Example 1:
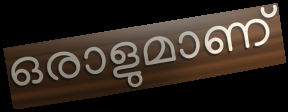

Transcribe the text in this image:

ഒരാളുമാണ്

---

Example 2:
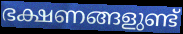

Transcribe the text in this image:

ഭക്ഷണങ്ങളുണ്ട്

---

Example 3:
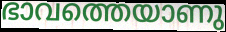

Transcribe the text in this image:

ഭാവത്തെയാണു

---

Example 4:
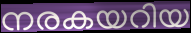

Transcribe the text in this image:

നരകയറിയ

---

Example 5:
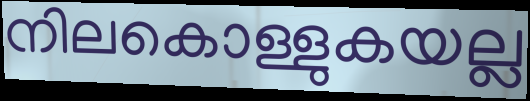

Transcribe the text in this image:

നിലകൊള്ളുകയല്ല